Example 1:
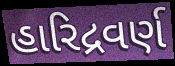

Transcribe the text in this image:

હારિદ્રવર્ણ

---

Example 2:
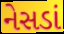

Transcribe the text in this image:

નેસડાં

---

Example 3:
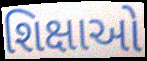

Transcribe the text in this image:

શિક્ષાઓ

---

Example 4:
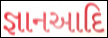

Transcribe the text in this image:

જ્ઞાનઆદિ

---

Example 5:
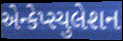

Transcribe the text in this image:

એન્કેપ્સ્યુલેશન